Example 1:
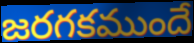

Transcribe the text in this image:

జరగకముందే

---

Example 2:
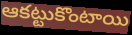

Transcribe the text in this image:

ఆకట్టుకొంటాయి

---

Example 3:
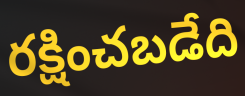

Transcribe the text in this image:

రక్షించబడేది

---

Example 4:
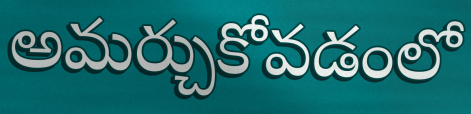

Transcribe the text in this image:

అమర్చుకోవడంలో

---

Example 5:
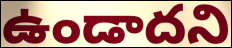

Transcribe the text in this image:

ఉండాదని